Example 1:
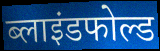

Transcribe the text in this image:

ब्लाइंडफोल्ड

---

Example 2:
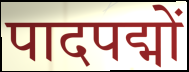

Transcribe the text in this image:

पादपद्मों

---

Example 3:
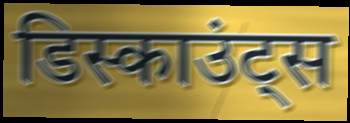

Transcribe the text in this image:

डिस्काउंट्स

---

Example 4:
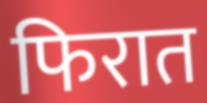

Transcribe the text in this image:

फिरात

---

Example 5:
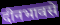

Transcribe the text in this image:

दीनभावसे